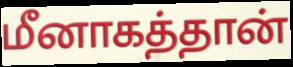
மீனாகத்தான்